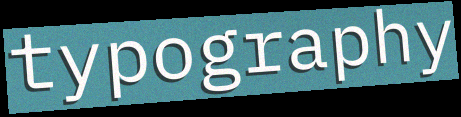
typography